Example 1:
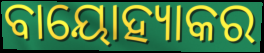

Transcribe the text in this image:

ବାୟୋହ୍ୟାକର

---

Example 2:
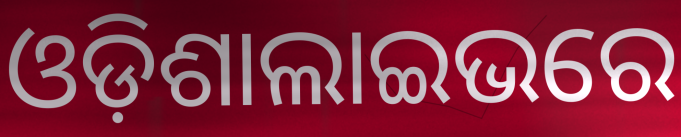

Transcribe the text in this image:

ଓଡ଼ିଶାଲାଇଭରେ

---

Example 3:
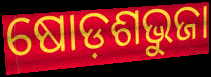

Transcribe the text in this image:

ଷୋଡ଼ଶଭୁଜା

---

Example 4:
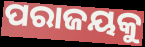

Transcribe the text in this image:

ପରାଜୟକୁ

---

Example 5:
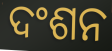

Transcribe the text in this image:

ଦଂଶନ